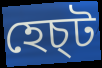
হেচ্ট